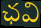
ఛవి